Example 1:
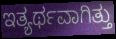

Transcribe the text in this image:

ಇತ್ಯರ್ಥವಾಗಿತ್ತು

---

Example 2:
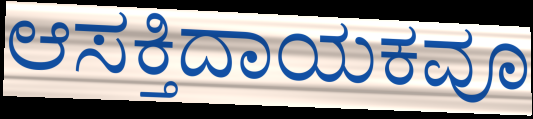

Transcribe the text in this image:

ಆಸಕ್ತಿದಾಯಕವೂ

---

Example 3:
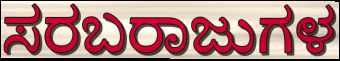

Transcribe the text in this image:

ಸರಬರಾಜುಗಳ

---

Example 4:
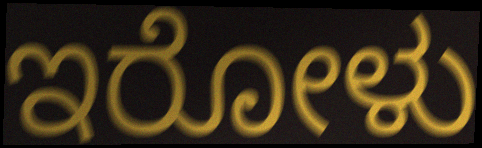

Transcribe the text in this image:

ಇರೋಳು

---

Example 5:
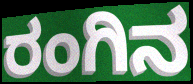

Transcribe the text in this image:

ರಂಗಿನ